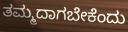
ತಮ್ಮದಾಗಬೇಕೆಂದು